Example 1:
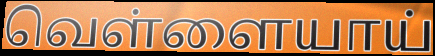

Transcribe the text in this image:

வெள்ளையாய்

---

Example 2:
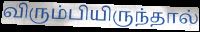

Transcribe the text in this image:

விரும்பியிருந்தால்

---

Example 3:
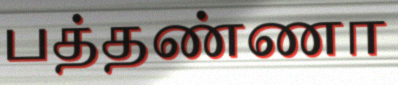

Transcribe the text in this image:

பத்தண்ணா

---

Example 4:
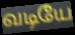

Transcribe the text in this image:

வடியே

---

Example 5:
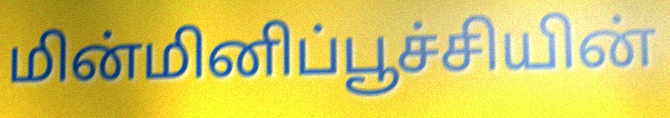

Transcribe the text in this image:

மின்மினிப்பூச்சியின்